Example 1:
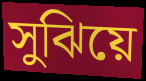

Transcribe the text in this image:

সুঝিয়ে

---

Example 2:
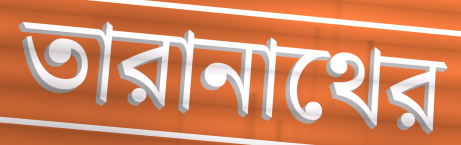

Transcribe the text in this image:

তারানাথের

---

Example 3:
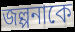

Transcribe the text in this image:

জল্পনাকে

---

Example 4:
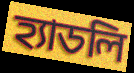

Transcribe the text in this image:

হ্যাডলি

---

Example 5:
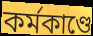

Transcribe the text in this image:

কর্মকাণ্ডে